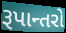
રૂપાન્તરો